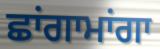
ਛਾਂਗਾਮਾਂਗਾ